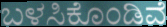
ಬಳಸಿಕೊಂಡಿವೆ